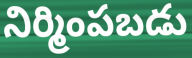
నిర్మింపబడు